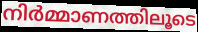
നിർമ്മാണത്തിലൂടെ